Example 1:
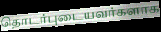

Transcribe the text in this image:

தொடர்புடையவர்களாக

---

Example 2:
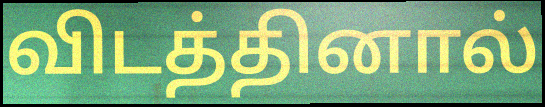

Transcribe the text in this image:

விடத்தினால்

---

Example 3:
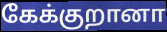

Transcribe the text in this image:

கேக்குறானா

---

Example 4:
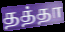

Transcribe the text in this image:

தத்தா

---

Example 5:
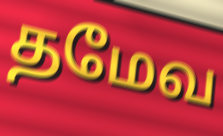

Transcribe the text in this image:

தமேவ